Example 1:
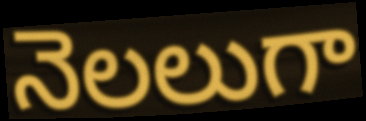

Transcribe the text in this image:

నెలలుగా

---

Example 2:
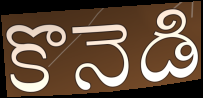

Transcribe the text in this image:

కొనెడి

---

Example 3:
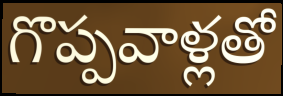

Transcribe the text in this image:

గొప్పవాళ్లతో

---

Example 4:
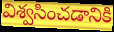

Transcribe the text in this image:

విశ్వసించడానికి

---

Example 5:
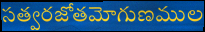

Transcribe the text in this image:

సత్వరజోతమోగుణముల